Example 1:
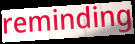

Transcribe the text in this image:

reminding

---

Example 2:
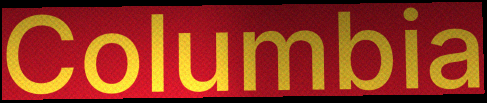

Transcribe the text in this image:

Columbia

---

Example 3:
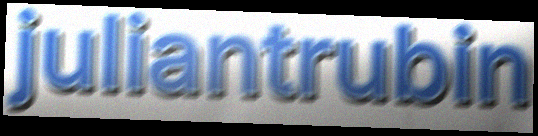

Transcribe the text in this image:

juliantrubin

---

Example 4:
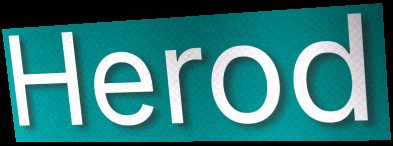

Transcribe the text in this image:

Herod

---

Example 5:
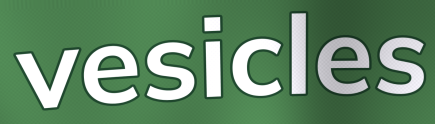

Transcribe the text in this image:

vesicles